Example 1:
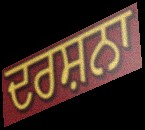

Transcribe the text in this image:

ਦਰਸ਼ਨਾ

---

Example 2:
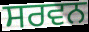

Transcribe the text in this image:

ਸਰਵਨ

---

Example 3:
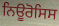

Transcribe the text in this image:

ਨਿਊਰੋਸਿਸ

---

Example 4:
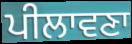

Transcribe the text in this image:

ਪੀਲਾਵਣਾ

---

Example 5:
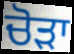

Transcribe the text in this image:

ਚੋੜਾ